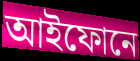
আইফোনে